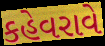
કહેવરાવે